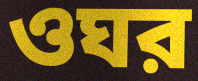
ওঘর